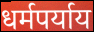
धर्मपर्याय